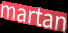
martan